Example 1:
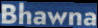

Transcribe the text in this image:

Bhawna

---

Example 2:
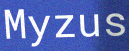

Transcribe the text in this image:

Myzus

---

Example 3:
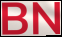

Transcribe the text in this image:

BN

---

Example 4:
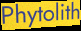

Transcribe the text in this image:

Phytolith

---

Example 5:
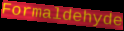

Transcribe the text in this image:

Formaldehyde